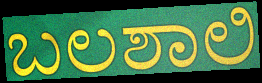
ಬಲಶಾಲಿ